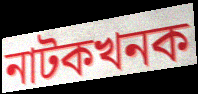
নাটকখনক